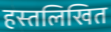
हस्तलिखित